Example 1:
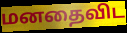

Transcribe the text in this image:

மனதைவிட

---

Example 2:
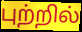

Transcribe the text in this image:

புற்றில்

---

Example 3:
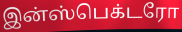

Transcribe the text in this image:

இன்ஸ்பெக்டரோ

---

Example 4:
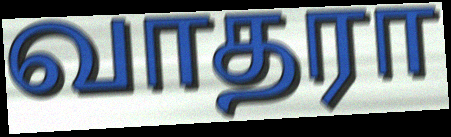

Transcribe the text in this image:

வாதரா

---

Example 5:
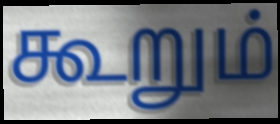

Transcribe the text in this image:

கூறும்